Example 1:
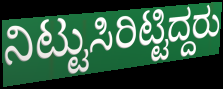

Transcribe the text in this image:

ನಿಟ್ಟುಸಿರಿಟ್ಟಿದ್ದರು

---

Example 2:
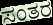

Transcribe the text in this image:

ಸಂತರ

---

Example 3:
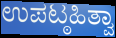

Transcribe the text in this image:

ಉಪಟ್ಠಹಿತ್ವಾ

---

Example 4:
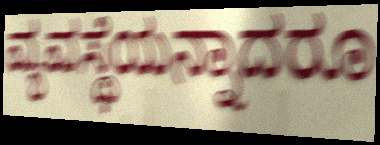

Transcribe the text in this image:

ವ್ಯವಸ್ಥೆಯನ್ನಾದರೂ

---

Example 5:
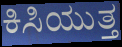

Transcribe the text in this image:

ಕಿಸಿಯುತ್ತ